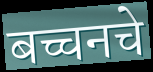
बच्चनचे